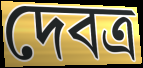
দেবত্র